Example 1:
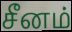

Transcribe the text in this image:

சீனம்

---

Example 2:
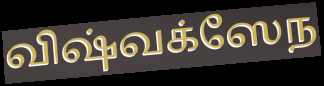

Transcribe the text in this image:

விஷ்வக்ஸேந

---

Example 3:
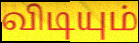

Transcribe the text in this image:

விடியும்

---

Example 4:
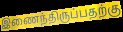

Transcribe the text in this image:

இணைந்திருப்பதற்கு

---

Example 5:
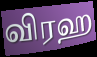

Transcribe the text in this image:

விரஹ